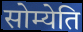
सोम्येति